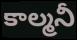
కాల్మనీ